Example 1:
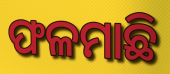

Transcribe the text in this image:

ଫଳମାଛି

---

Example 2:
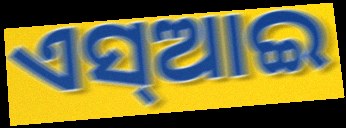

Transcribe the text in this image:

ଏସ୍ଆଇ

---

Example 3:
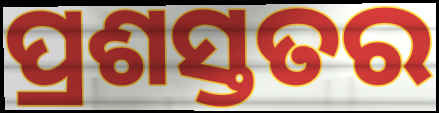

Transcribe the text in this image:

ପ୍ରଶସ୍ତତର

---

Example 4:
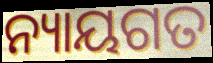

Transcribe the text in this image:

ନ୍ୟାୟଗତ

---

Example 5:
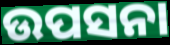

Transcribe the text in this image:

ଉପସନା